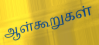
ஆள்கூறுகள்